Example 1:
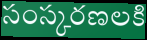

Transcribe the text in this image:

సంస్కరణలకి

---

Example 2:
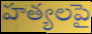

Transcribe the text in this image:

హత్యలపై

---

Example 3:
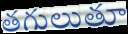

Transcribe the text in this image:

తగులుతూ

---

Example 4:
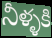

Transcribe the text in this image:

నీళ్ళకి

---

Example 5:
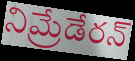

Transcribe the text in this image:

నిమ్రేడేరన్